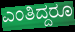
ಎಂತಿದ್ದರೂ